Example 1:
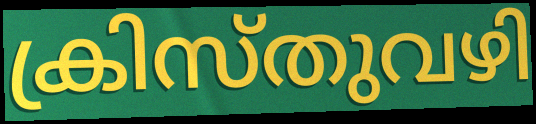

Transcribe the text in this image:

ക്രിസ്തുവഴി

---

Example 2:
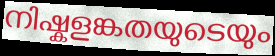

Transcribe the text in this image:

നിഷ്കളങ്കതയുടെയും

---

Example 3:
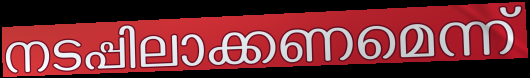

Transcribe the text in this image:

നടപ്പിലാക്കണമെന്ന്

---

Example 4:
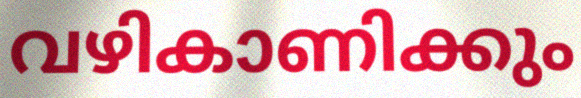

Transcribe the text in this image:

വഴികാണിക്കും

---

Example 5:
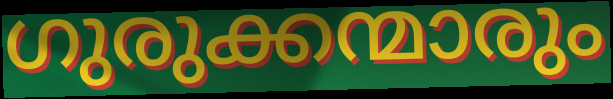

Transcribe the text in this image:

ഗുരുക്കന്മാരും